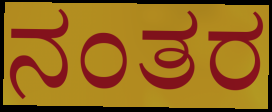
ನಂತರ